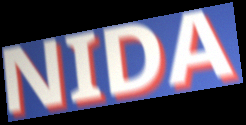
NIDA